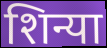
शिन्या